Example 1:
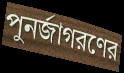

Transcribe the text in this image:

পুনর্জাগরণের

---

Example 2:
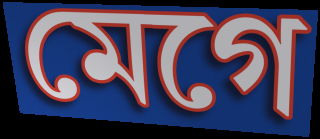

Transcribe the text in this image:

মেগে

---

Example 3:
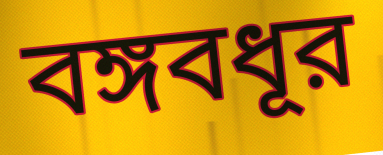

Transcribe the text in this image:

বঙ্গবধূর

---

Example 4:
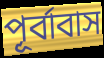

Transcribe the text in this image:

পূর্বাবাস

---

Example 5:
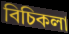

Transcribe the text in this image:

বিচিকলা